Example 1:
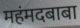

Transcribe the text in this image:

महंमदबाबा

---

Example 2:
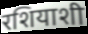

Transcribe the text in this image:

रशियाशी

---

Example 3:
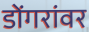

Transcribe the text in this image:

डोंगरांवर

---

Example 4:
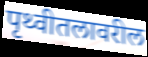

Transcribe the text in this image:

पृथ्वीतलावरील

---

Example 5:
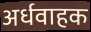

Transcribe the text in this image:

अर्धवाहक